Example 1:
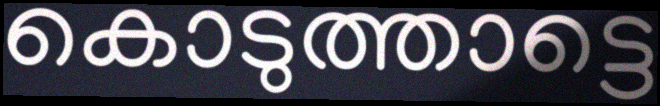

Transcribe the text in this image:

കൊടുത്താട്ടെ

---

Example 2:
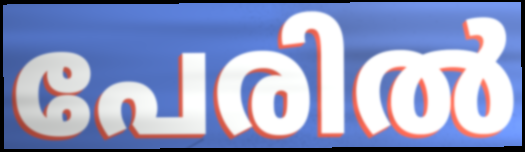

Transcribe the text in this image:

പേരിൽ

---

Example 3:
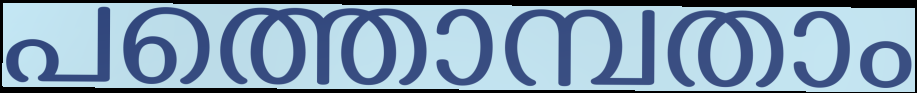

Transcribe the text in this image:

പത്തൊമ്പതാം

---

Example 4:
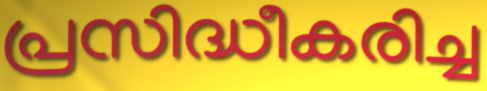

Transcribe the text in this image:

പ്രസിദ്ധീകരിച്ച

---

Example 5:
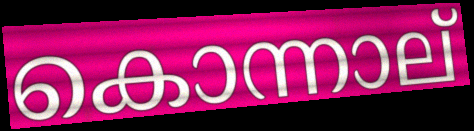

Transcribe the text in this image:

കൊന്നാല്